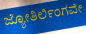
ಜ್ಯೋತಿರ್ಲಿಂಗವೇ